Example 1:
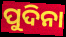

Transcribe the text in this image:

ପୁଦିନା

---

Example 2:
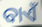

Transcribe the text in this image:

ବାଏଁ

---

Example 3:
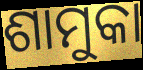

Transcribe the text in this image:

ଶାମୁକା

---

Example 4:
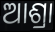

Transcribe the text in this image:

ଆଶ୍ରା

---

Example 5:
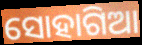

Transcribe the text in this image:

ସୋହାଗିଆ